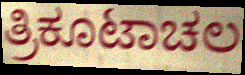
ತ್ರಿಕೂಟಾಚಲ